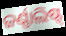
ଜର୍ଣ୍ଣାଲିଷ୍ଟ୍